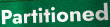
Partitioned